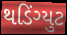
થડિંગ્યુટ